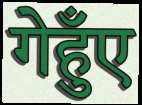
गेहुँए